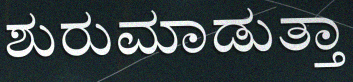
ಶುರುಮಾಡುತ್ತಾ